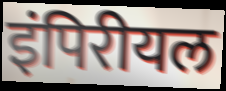
इंपिरीयल